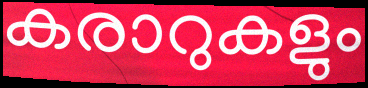
കരാറുകളും